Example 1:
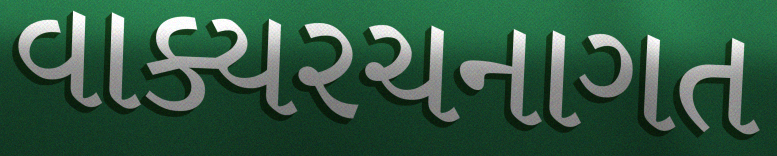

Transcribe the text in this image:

વાક્યરચનાગત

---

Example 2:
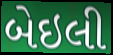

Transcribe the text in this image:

બેઇલી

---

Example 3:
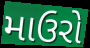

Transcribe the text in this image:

માઉરો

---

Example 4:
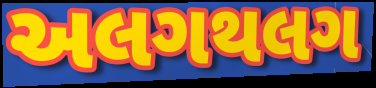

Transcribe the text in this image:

અલગથલગ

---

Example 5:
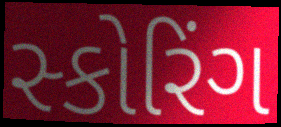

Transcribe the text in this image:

સ્કોરિંગ